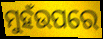
ମୁହଁଉପରେ